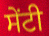
ਸੇਂਟੀ